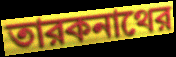
তারকনাথের